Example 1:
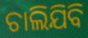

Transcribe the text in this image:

ଚାଲିଯିବି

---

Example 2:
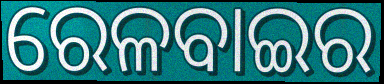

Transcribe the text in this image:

ରେଳବାଇର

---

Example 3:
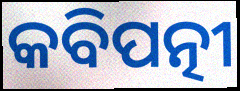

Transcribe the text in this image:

କବିପତ୍ନୀ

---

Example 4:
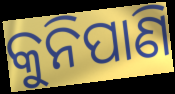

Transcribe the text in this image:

କୁନିପାଣି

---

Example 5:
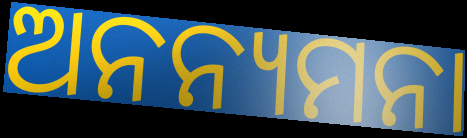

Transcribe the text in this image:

ଅନନ୍ୟମନା